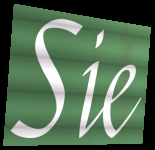
Sie